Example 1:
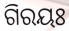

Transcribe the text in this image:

ଗିରୟଃ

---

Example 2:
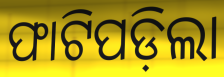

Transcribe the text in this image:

ଫାଟିପଡ଼ିଲା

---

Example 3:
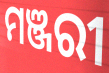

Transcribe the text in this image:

ମଞ୍ଜରୀ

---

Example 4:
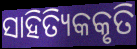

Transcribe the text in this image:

ସାହିତ୍ୟିକକୃତି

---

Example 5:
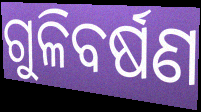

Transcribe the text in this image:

ଗୁଳିବର୍ଷଣ